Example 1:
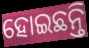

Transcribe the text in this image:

ହୋଇଛନ୍ତି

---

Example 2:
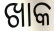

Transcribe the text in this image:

ଖାକ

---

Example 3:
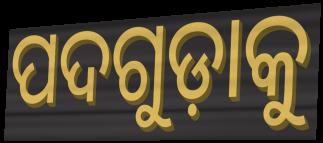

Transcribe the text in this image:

ପଦଗୁଡ଼ାକୁ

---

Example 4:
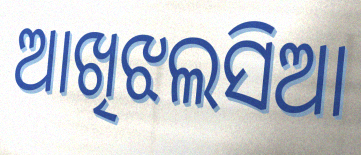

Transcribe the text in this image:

ଆଖିଝଲସିଆ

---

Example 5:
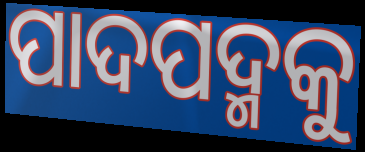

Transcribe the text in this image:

ପାଦପଦ୍ମକୁ